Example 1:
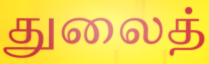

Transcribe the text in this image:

துலைத்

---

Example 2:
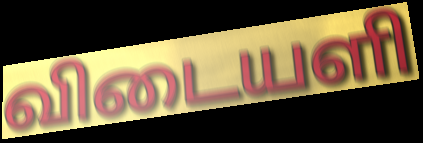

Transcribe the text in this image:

விடையளி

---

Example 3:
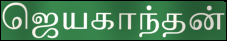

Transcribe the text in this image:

ஜெயகாந்தன்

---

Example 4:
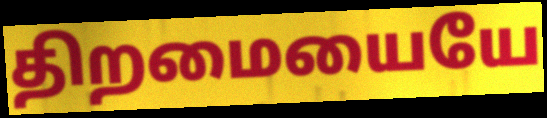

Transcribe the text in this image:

திறமையையே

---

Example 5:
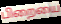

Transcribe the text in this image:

பிறையை